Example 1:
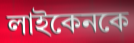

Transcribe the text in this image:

লাইকেনকে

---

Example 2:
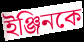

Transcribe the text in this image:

ইঞ্জিনকে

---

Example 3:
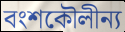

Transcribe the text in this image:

বংশকৌলীন্য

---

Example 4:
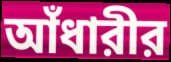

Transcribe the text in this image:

আঁধারীর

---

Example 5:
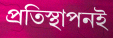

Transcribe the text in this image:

প্রতিস্থাপনই